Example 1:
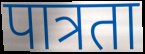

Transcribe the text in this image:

पात्रता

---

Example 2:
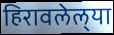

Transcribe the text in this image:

हिरावलेल्या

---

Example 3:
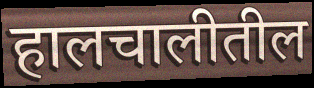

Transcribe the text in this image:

हालचालीतील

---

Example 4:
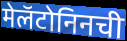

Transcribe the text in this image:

मेलॅटोनिनची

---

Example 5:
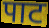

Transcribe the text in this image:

पाट